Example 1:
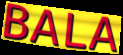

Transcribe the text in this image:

BALA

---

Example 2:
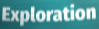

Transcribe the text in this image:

Exploration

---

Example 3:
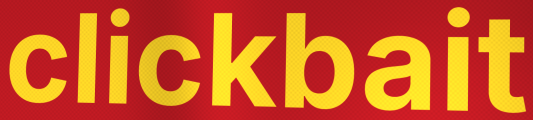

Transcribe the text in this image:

clickbait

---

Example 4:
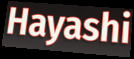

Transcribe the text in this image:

Hayashi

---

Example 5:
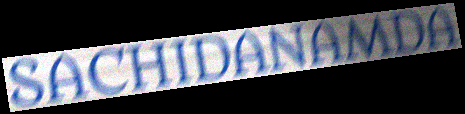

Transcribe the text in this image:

SACHIDANAMDA